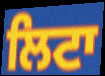
ਲਿਟਾ